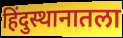
हिंदुस्थानातला